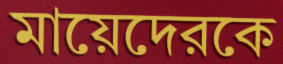
মায়েদেরকে